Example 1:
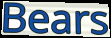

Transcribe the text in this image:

Bears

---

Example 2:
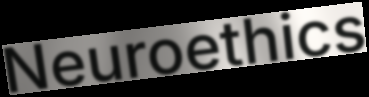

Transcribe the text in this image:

Neuroethics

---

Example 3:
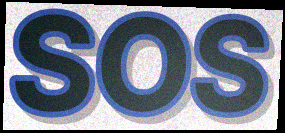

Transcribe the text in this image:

SOS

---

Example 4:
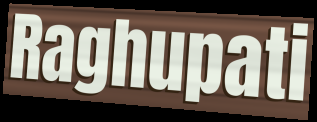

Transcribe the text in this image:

Raghupati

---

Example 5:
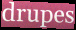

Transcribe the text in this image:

drupes